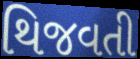
થિજવતી